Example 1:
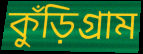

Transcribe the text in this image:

কুঁড়িগ্রাম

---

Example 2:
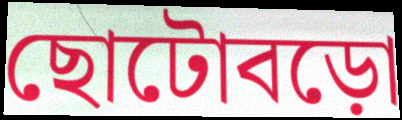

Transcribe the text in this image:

ছোটোবড়ো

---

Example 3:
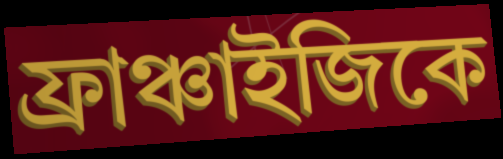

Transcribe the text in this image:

ফ্রাঞ্চাইজিকে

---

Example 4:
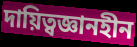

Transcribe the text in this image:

দায়িত্বজ্ঞানহীন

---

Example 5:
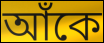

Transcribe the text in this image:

আঁকে